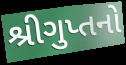
શ્રીગુપ્તનો